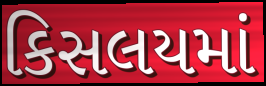
કિસલયમાં